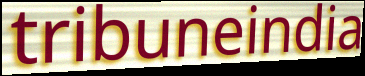
tribuneindia